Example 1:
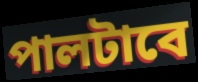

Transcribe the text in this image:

পালটাবে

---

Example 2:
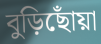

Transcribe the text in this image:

বুড়িছোঁয়া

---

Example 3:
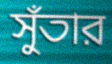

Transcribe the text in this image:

সুঁতার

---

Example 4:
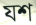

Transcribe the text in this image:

যশ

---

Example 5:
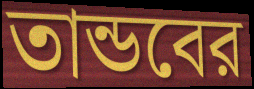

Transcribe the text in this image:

তান্ডবের